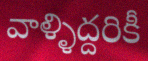
వాళ్ళిద్దరికీ